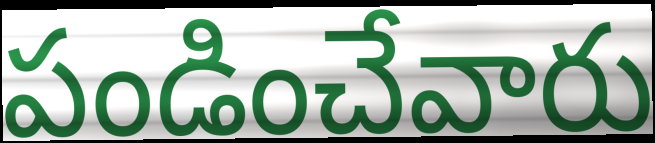
పండించేవారు